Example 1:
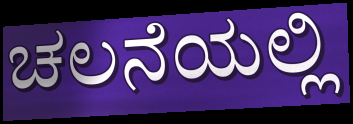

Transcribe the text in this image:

ಚಲನೆಯಲ್ಲಿ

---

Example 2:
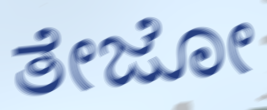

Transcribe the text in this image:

ತೇಜೋ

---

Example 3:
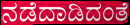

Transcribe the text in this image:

ನಡೆದಾಡಿದಂತೆ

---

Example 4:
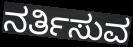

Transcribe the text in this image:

ನರ್ತಿಸುವ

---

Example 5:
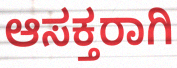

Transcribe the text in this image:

ಆಸಕ್ತರಾಗಿ